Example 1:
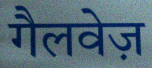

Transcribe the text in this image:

गैलवेज़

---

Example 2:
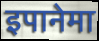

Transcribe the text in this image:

इपानेमा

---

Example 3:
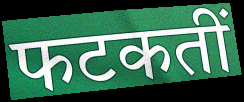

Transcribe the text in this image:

फटकतीं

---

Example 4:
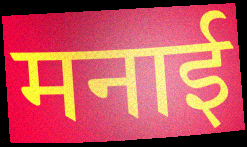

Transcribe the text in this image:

मनाई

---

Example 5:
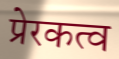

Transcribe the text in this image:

प्रेरकत्व